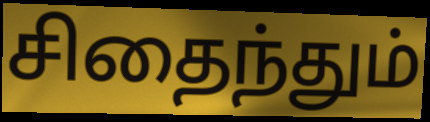
சிதைந்தும்